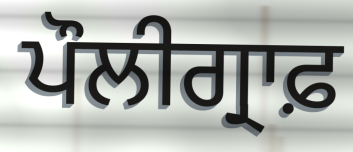
ਪੌਲੀਗ੍ਰਾਫ਼